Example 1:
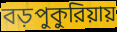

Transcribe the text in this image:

বড়পুকুরিয়ায়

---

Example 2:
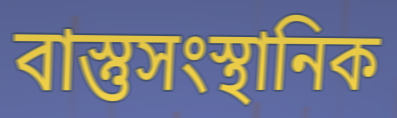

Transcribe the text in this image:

বাস্তুসংস্থানিক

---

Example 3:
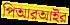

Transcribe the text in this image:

পিআরআইর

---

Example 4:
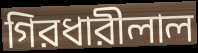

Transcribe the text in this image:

গিরধারীলাল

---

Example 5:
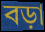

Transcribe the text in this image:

বড়া